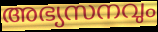
അഭ്യസനവും